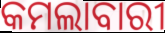
କମଲାବାରୀ